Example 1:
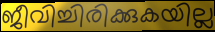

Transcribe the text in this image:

ജീവിച്ചിരിക്കുകയില്ല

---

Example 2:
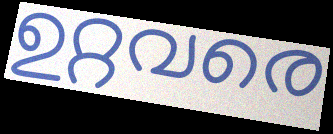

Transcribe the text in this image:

ഉറ്റവരെ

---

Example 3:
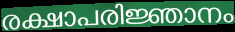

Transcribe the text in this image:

രക്ഷാപരിജ്ഞാനം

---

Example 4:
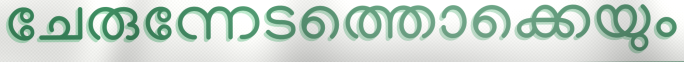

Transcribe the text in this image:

ചേരുന്നേടത്തൊക്കെയും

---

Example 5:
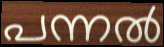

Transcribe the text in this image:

പന്നൽ